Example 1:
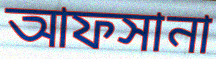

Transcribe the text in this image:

আফসানা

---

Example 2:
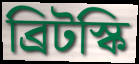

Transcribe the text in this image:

ব্রিটস্কি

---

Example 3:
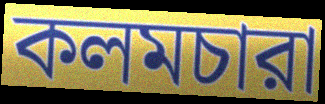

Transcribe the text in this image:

কলমচারা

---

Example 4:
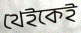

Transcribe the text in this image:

থেইকেই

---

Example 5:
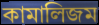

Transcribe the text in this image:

কামালিজম